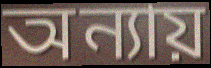
অন্যায়